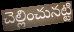
చెల్లించునట్టి